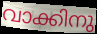
വാക്കിനു